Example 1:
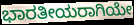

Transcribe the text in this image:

ಭಾರತೀಯರಾಗಿಯೇ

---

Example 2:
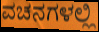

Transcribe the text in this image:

ವಚನಗಳಲ್ಲಿ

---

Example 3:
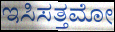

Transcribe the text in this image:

ಇಸಿಸತ್ತಮೋ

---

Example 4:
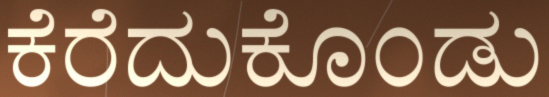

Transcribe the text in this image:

ಕೆರೆದುಕೊಂಡು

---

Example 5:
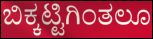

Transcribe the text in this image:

ಬಿಕ್ಕಟ್ಟಿಗಿಂತಲೂ